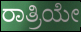
ರಾತ್ರಿಯೇ